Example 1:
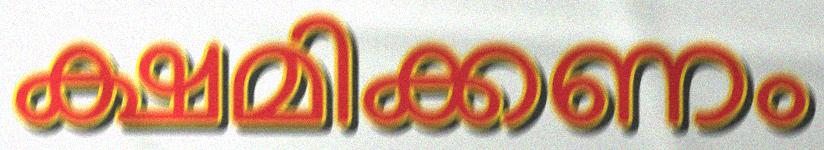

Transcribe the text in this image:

ക്ഷമിക്കണം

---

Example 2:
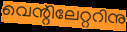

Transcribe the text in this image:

വെന്റിലേറ്ററിനു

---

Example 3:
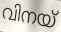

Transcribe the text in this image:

വിനയ്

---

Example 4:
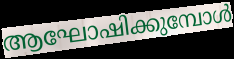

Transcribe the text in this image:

ആഘോഷിക്കുമ്പോൾ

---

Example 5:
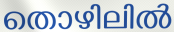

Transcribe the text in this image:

തൊഴിലിൽ